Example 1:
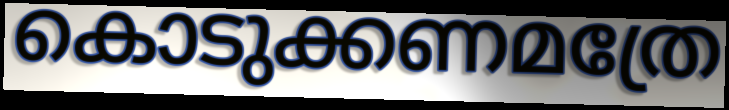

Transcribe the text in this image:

കൊടുക്കണമത്രേ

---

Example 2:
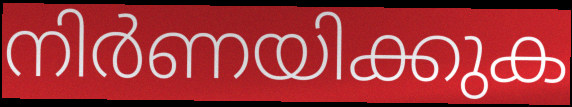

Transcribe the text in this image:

നിർണയിക്കുക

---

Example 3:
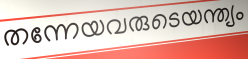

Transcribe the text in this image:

തന്നേയവരുടെയന്ത്യം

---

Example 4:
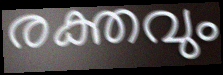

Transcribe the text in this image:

രക്തവും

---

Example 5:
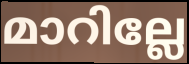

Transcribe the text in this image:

മാറില്ലേ